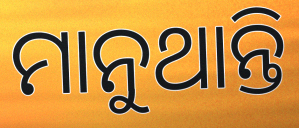
ମାନୁଥାନ୍ତି